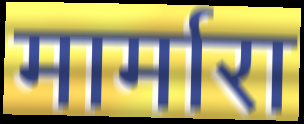
मार्मारा